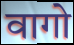
वागो